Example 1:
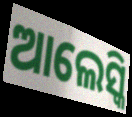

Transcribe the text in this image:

ଆଲେସ୍କି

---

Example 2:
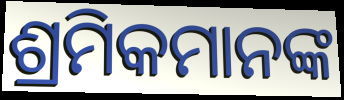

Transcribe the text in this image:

ଶ୍ରମିକମାନଙ୍କ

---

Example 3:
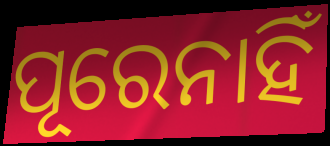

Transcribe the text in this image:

ପୂରେନାହିଁ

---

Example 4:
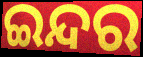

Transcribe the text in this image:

ଇନ୍ଦର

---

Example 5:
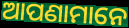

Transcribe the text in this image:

ଆପଣାମାନେ